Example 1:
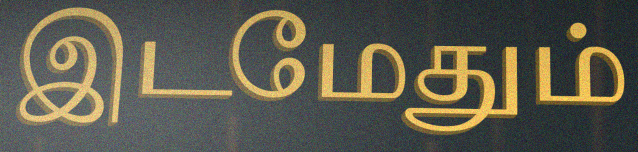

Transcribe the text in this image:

இடமேதும்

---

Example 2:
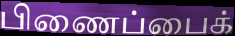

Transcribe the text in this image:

பிணைப்பைக்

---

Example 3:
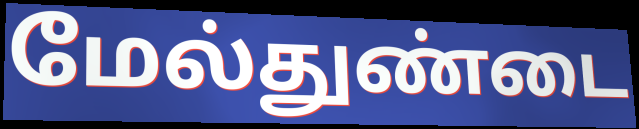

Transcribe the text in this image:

மேல்துண்டை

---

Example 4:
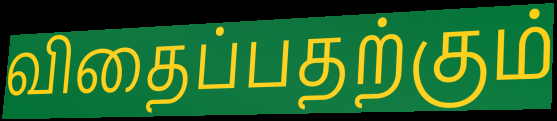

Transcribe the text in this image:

விதைப்பதற்கும்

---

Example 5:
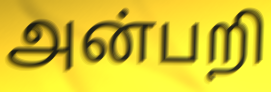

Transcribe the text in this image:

அன்பறி